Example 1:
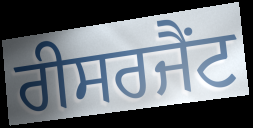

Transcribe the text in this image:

ਰੀਸਰਜੈਂਟ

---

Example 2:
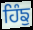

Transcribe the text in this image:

ਹਿੰਙੁ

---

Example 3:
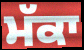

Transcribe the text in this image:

ਮੱਕਾ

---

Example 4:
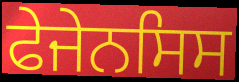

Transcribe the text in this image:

ਫੇਜੇਨਸਿਸ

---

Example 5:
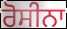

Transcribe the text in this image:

ਰੋਸੀਨਾ